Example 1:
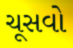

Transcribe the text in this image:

ચૂસવો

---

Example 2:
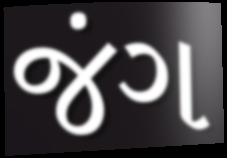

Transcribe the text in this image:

જંગ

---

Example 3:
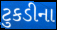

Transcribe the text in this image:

ટુકડીના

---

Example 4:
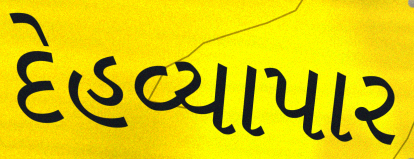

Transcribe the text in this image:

દેહવ્યાપાર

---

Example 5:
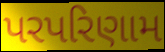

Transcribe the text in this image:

પરપરિણામ